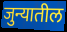
जुन्यातील